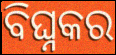
ବିଘ୍ନକର